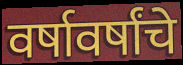
वर्षावर्षांचे